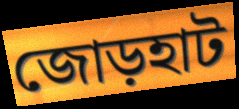
জোড়হাট